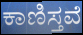
ಕಾಣಿಸ್ತವೆ